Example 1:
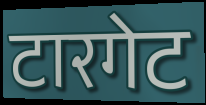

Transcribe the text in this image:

टारगेट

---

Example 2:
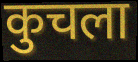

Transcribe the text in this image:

कुचला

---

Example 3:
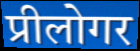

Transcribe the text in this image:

प्रीलोगर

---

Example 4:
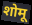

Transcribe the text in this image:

शोमू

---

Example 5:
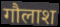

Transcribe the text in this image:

गौलाश